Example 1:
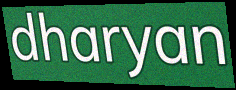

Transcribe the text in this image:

dharyan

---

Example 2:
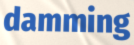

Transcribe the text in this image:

damming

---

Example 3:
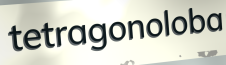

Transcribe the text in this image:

tetragonoloba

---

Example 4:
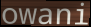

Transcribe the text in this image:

owani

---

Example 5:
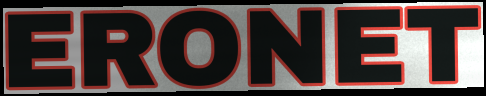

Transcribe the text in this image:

ERONET